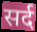
सर्द